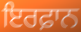
ਇਰਫ਼ਾਨ